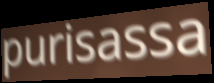
purisassa